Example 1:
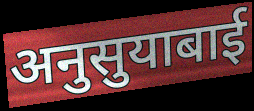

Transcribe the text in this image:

अनुसुयाबाई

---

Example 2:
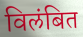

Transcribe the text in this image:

विलंबित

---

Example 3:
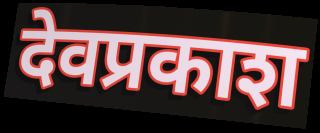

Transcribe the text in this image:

देवप्रकाश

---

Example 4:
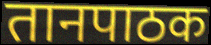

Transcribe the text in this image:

तानपाठक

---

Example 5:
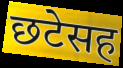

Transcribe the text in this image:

छटेसह